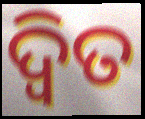
ଦ୍ୱିତ